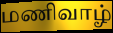
மணிவாழ்